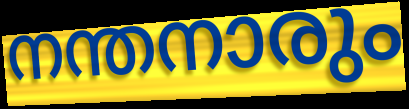
നന്തനാരും